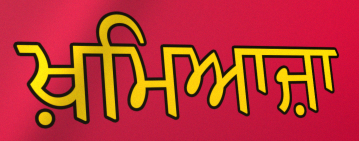
ਖ਼ਮਿਆਜ਼ਾ